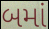
બમાં